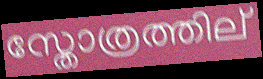
സ്തോത്രത്തില്